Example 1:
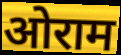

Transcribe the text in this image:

ओराम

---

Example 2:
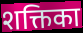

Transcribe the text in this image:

शक्तिका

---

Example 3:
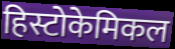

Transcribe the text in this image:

हिस्टोकेमिकल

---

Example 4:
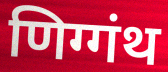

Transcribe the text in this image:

णिग्गंथ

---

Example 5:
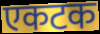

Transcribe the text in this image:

एकटक